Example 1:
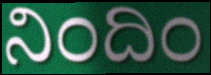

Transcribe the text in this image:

ನಿಂದಿಂ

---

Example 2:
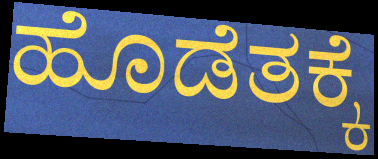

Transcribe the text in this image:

ಹೊಡೆತಕ್ಕೆ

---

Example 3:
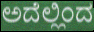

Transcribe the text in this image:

ಅದೆಲ್ಲಿಂದ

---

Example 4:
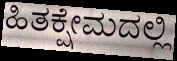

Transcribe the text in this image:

ಹಿತಕ್ಷೇಮದಲ್ಲಿ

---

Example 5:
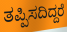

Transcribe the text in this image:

ತಪ್ಪಿಸದಿದ್ದರೆ